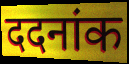
ददनांक